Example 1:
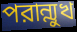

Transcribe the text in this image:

পরান্মুখ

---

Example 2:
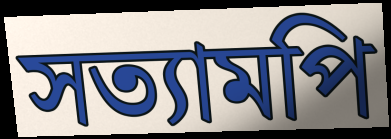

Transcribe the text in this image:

সত্যামপি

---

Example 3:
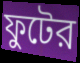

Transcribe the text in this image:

ফুটের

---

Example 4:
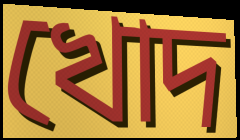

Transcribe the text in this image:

খোদ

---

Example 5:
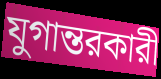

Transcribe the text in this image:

যুগান্তরকারী